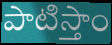
పాటిస్తాం